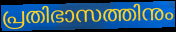
പ്രതിഭാസത്തിനും